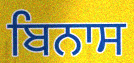
ਬਿਨਾਸ